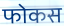
फोकस